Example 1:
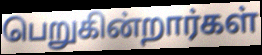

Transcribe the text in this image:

பெறுகின்றார்கள்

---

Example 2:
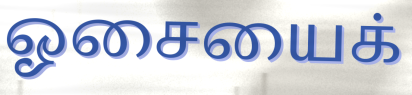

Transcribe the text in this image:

ஓசையைக்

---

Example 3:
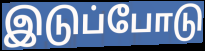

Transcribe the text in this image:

இடுப்போடு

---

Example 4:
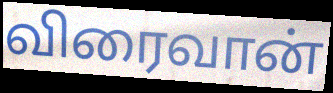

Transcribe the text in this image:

விரைவான்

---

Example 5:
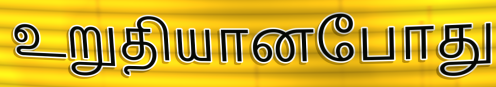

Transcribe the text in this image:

உறுதியானபோது